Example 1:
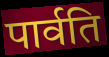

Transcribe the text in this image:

पार्वति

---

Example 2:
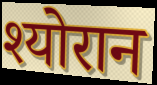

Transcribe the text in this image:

श्योरान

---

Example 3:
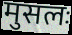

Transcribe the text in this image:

मुसलः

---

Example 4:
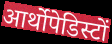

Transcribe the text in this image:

आर्थोपेडिस्टों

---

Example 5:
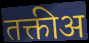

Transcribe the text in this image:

तक्तीअ